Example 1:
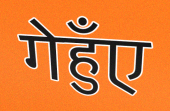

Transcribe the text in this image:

गेहुँए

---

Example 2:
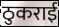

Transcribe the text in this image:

ठुकराई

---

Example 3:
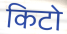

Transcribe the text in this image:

किटो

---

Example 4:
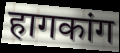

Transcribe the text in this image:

हागकांग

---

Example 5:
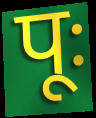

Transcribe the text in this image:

पूः